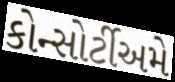
કોન્સોર્ટીઅમે